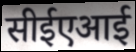
सीईएआई